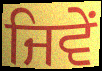
ਜਿਵੇੰ